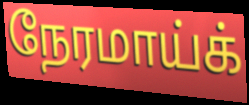
நேரமாய்க்